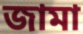
জামা